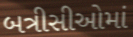
બત્રીસીઓમાં